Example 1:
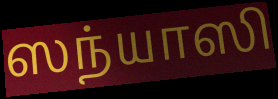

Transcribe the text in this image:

ஸந்யாஸி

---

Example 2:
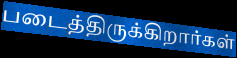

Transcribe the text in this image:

படைத்திருக்கிறார்கள்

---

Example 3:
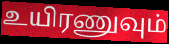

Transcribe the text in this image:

உயிரணுவும்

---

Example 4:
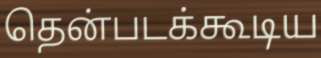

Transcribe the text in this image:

தென்படக்கூடிய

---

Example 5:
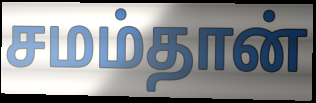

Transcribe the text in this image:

சமம்தான்